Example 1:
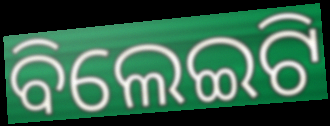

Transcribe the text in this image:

ବିଲେଇଟି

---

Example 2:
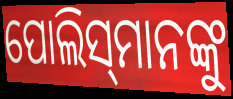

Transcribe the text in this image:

ପୋଲିସ୍‌ମାନଙ୍କୁ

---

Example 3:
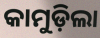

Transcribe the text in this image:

କାମୁଡ଼ିଲା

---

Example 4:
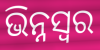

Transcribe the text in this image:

ଭିନ୍ନସ୍ବର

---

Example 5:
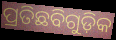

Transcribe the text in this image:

ପ୍ରତିଛବିଗୁଡ଼ିକ